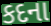
કદના